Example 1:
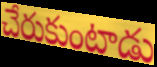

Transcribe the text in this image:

చేరుకుంటాడు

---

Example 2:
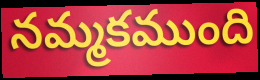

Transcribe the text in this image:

నమ్మకముంది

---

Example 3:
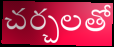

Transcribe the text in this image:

చర్చలతో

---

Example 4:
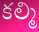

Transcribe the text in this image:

కల్మి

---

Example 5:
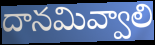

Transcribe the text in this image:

దానమివ్వాలి